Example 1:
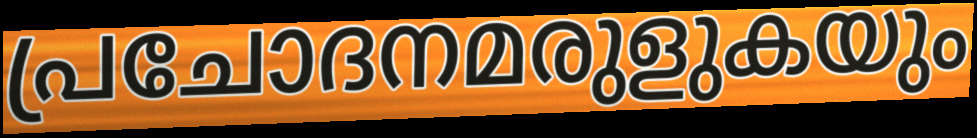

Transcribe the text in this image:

പ്രചോദനമരുളുകയും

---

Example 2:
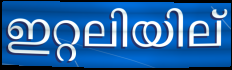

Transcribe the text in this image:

ഇറ്റലിയില്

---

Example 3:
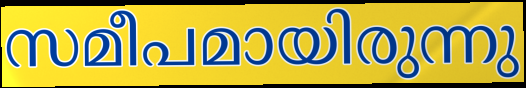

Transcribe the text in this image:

സമീപമായിരുന്നു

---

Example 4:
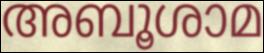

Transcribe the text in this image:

അബൂശാമ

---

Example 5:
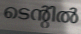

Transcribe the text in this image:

ടെന്റിൽ